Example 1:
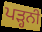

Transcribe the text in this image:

ਪੜ੍ਹਨੀ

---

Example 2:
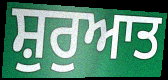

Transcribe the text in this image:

ਸ਼ੁਰੁਆਤ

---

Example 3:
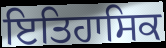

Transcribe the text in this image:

ਇਤਿਹਾਸਿਕ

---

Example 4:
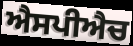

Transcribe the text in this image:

ਐਸਪੀਐਚ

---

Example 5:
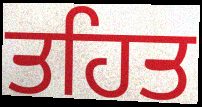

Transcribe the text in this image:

ਤਹਿਤ